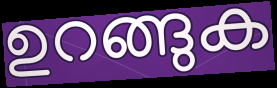
ഉറങ്ങുക